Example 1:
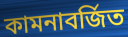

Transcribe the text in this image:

কামনাবর্জিত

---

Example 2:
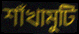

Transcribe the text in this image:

শাঁখামুটি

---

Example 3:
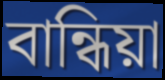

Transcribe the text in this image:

বান্ধিয়া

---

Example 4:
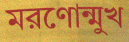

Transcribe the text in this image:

মরণোন্মুখ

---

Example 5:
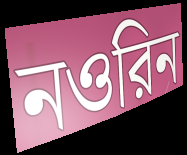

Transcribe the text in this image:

নওরিন